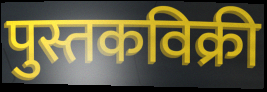
पुस्तकविक्री